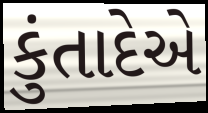
કુંતાદેએ